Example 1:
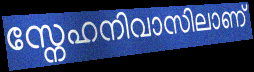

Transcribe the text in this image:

സ്നേഹനിവാസിലാണ്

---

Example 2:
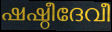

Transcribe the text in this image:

ഷഷ്ഠീദേവീ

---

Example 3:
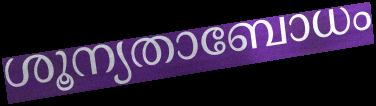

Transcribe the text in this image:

ശൂന്യതാബോധം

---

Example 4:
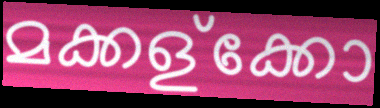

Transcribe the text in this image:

മക്കള്ക്കോ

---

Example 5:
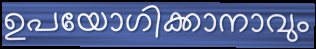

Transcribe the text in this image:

ഉപയോഗിക്കാനാവും